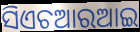
ସିଏଚଆରଆଇ